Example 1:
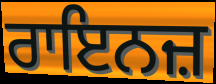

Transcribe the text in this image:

ਰਾਇਨਜ਼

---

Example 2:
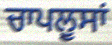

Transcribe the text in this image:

ਚਾਪਲੂਸਾਂ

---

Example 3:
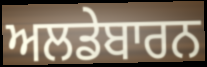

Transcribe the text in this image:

ਅਲਡੇਬਾਰਨ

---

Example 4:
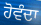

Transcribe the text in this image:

ਹੋਵੰਦਾ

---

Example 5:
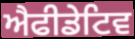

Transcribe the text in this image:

ਐਫੀਡੇਟਿਵ